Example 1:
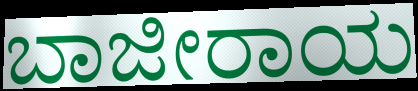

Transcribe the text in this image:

ಬಾಜೀರಾಯ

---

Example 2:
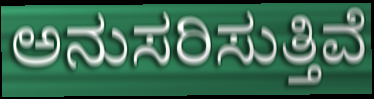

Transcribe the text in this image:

ಅನುಸರಿಸುತ್ತಿವೆ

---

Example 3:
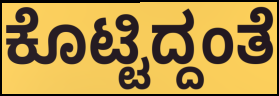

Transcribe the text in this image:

ಕೊಟ್ಟಿದ್ದಂತೆ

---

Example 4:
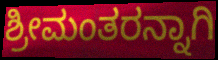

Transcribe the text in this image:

ಶ್ರೀಮಂತರನ್ನಾಗಿ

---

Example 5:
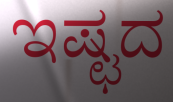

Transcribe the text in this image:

ಇಷ್ಟದ